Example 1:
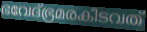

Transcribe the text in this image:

ഭവേദ്ഭ്രമരകീടവത്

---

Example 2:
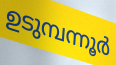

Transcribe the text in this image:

ഉടുമ്പന്നൂർ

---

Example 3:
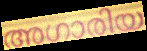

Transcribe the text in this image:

അഗാരിയ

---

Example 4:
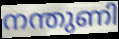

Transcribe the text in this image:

നന്തുണി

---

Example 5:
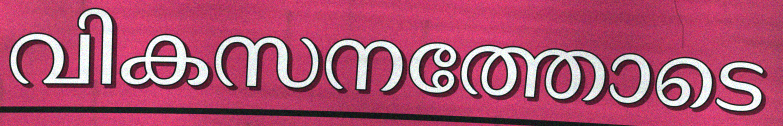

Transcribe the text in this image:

വികസനത്തോടെ